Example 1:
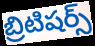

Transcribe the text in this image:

బ్రిటిషర్స్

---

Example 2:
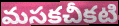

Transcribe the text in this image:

మసకచీకటి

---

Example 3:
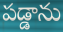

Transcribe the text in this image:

పడ్డాను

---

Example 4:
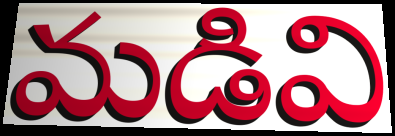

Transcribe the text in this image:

మడివి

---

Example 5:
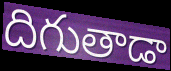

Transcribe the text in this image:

దిగుతాడా